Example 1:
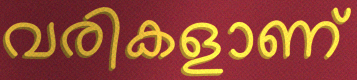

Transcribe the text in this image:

വരികളാണ്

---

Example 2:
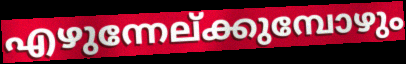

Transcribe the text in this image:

എഴുന്നേല്ക്കുമ്പോഴും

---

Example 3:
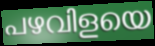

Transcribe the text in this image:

പഴവിളയെ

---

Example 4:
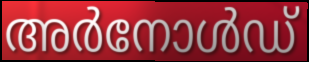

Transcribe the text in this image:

അർനോൾഡ്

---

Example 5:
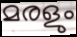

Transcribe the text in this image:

മരളും